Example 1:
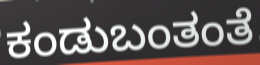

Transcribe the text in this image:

ಕಂಡುಬಂತಂತೆ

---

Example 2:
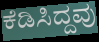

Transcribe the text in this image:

ಕೆಡಿಸಿದ್ದವು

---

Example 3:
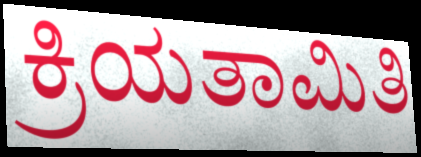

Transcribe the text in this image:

ಕ್ರಿಯತಾಮಿತಿ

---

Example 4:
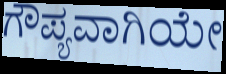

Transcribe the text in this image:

ಗೌಪ್ಯವಾಗಿಯೇ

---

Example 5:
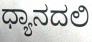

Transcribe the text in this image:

ಧ್ಯಾನದಲಿ